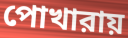
পোখারায়